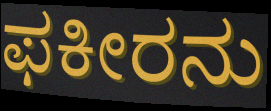
ಫಕೀರನು